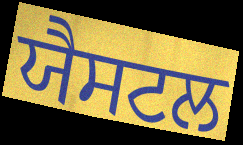
ਯੈਸਟਲ